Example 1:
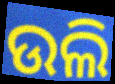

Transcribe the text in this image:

ଉଲି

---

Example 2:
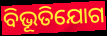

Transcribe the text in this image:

ବିଭୂତିଯୋଗ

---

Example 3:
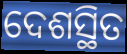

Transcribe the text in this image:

ଦେଶସ୍ଥିତ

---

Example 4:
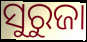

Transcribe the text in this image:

ସୁରୁଜା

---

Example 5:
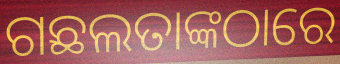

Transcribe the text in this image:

ଗଛଲତାଙ୍କଠାରେ